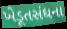
ખેડૂતસંઘના